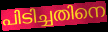
പിടിച്ചതിനെ